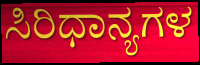
ಸಿರಿಧಾನ್ಯಗಳ